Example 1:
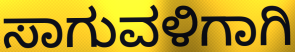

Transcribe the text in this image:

ಸಾಗುವಳಿಗಾಗಿ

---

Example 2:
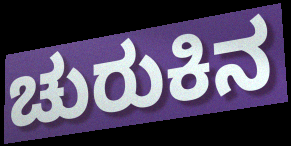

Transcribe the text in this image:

ಚುರುಕಿನ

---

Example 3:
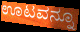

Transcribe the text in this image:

ಊಟವನ್ನೂ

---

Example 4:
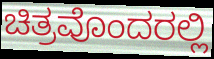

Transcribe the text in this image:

ಚಿತ್ರವೊಂದರಲ್ಲಿ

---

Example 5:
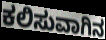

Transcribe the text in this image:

ಕಲಿಸುವಾಗಿನ